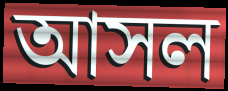
আসল